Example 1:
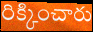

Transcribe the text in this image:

రిక్కించారు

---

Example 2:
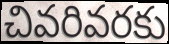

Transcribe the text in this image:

చివరివరకు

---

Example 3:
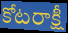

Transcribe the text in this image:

కోటరాక్షీ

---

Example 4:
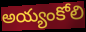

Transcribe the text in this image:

అయ్యంకోలి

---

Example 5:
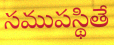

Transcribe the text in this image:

సముపస్థితే